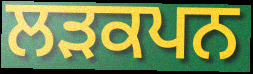
ਲੜਕਪਨ